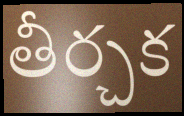
తీర్చక